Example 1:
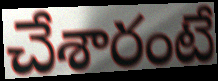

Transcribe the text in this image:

చేశారంటే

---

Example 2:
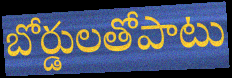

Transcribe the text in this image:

బోర్డులతోపాటు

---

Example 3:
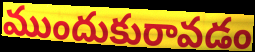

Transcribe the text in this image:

ముందుకురావడం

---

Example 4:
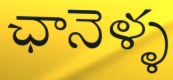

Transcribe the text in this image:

ఛానెళ్ళ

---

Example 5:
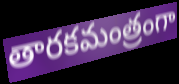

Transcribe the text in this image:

తారకమంత్రంగా